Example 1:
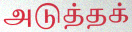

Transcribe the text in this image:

அடுத்தக்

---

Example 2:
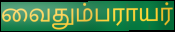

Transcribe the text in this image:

வைதும்பராயர்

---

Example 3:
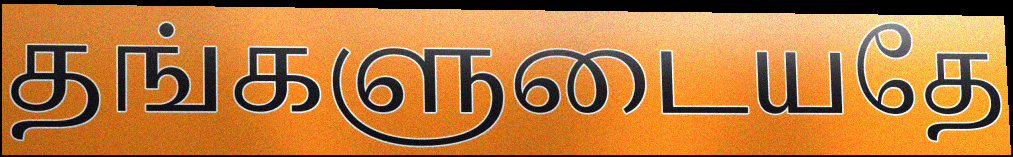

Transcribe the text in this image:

தங்களுடையதே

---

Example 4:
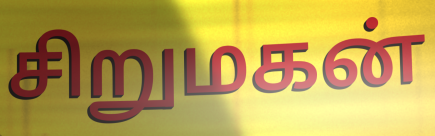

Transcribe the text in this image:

சிறுமகன்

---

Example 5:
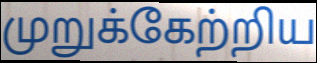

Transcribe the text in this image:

முறுக்கேற்றிய